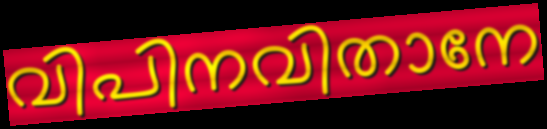
വിപിനവിതാനേ